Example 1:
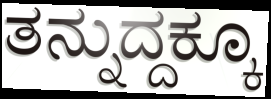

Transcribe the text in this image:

ತನ್ನುದ್ದಕ್ಕೂ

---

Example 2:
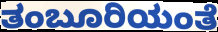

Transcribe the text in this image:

ತಂಬೂರಿಯಂತೆ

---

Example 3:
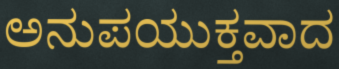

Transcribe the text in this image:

ಅನುಪಯುಕ್ತವಾದ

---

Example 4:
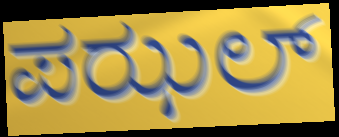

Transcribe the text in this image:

ಪಝಲ್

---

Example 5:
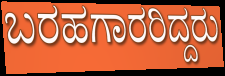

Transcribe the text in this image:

ಬರಹಗಾರರಿದ್ದರು